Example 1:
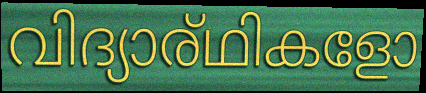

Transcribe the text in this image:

വിദ്യാര്ഥികളോ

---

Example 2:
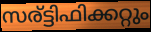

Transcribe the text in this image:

സര്ട്ടിഫിക്കറ്റും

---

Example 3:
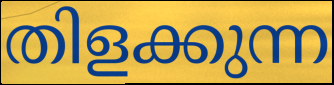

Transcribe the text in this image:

തിളക്കുന്ന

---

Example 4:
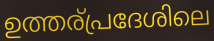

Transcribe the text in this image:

ഉത്തര്പ്രദേശിലെ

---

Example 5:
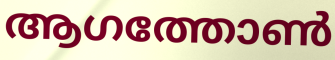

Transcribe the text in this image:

ആഗത്തോൺ